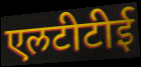
एलटीटीई